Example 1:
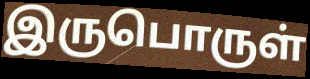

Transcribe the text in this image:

இருபொருள்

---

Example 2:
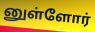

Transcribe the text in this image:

னுள்ளோர்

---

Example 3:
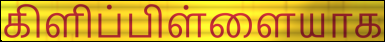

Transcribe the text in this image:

கிளிப்பிள்ளையாக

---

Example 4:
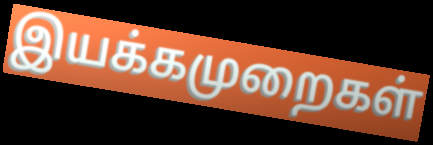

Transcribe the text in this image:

இயக்கமுறைகள்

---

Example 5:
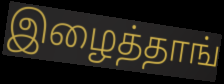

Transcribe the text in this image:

இழைத்தாங்